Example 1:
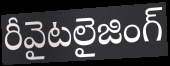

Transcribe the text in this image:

రీవైటలైజింగ్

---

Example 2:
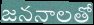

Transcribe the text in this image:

జననాలతో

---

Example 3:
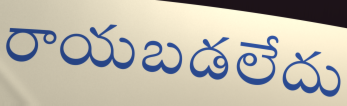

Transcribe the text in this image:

రాయబడలేదు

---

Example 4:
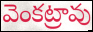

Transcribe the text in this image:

వెంకట్రావు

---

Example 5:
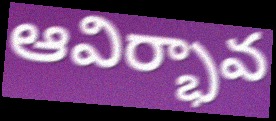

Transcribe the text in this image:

ఆవిర్భావ